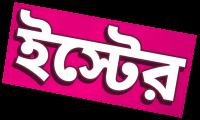
ইস্টের